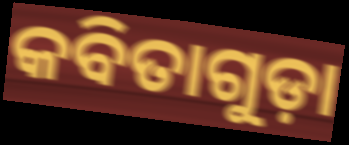
କବିତାଗୁଡ଼ା